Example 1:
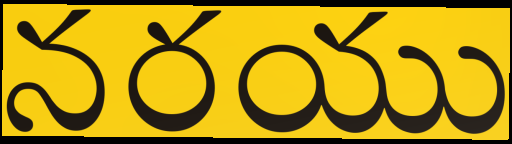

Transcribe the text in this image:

నరయు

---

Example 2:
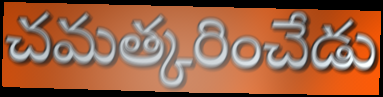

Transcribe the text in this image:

చమత్కరించేడు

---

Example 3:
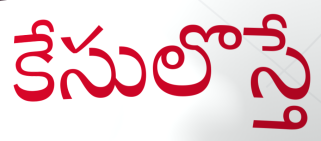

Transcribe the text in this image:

కేసులొస్తే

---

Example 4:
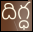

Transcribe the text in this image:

దిగ్ధ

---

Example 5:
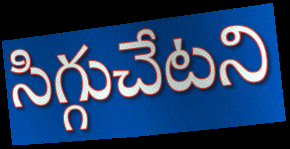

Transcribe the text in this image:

సిగ్గుచేటని